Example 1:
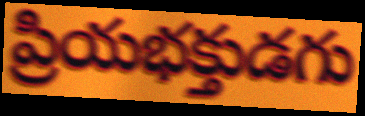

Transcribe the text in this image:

ప్రియభక్తుడగు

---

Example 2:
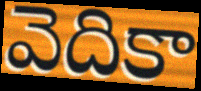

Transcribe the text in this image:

వెదికా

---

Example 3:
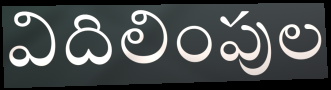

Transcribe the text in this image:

విదిలింపుల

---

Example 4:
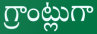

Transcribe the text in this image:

గ్రాంట్లుగా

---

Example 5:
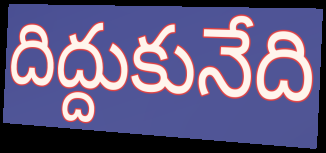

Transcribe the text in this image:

దిద్దుకునేది